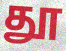
தூ